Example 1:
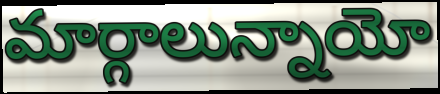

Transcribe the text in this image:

మార్గాలున్నాయో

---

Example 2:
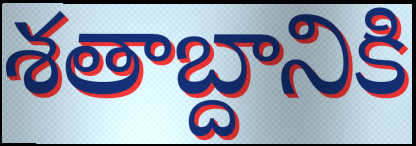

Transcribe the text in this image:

శతాబ్దానికి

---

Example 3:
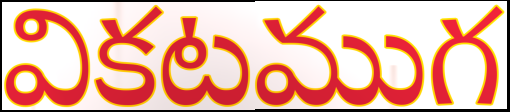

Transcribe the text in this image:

వికటముగ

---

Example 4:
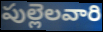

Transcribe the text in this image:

పుల్లెలవారి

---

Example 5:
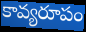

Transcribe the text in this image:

కావ్యరూపం